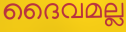
ദൈവമല്ല